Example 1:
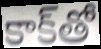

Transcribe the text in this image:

కాక్‌తో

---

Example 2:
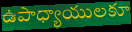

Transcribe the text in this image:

ఉపాధ్యాయులకూ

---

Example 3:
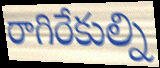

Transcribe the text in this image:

రాగిరేకుల్ని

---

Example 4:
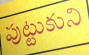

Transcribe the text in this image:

పుట్టుకుని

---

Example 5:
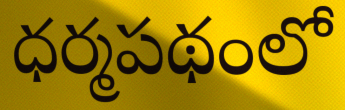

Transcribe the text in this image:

ధర్మపథంలో